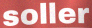
soller